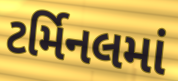
ટર્મિનલમાં